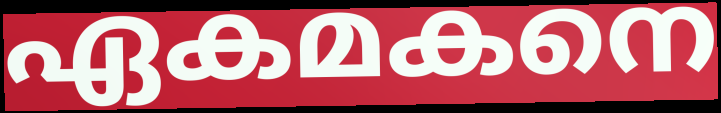
ഏകമകനെ